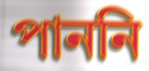
পাননি